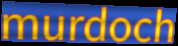
murdoch